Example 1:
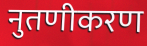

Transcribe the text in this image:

नुतणीकरण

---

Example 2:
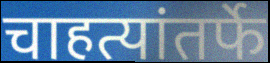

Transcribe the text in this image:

चाहत्यांतर्फे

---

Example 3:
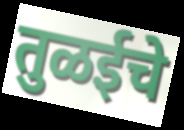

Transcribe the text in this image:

तुळईचे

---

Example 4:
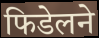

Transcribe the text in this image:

फिडेलने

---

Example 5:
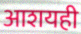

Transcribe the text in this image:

आशयही